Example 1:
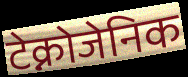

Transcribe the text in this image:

टेक्नोजेनिक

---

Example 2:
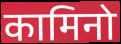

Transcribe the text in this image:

कामिनो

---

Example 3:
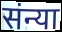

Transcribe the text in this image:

संन्या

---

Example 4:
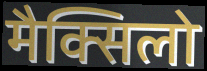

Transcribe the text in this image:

मैक्सिलो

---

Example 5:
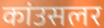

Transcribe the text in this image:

कांउसलर